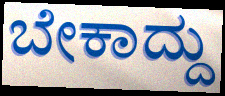
ಬೇಕಾದ್ದು